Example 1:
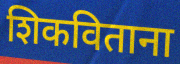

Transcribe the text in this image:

शिकविताना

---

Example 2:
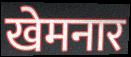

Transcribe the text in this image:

खेमनार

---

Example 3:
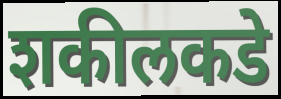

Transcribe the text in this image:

शकीलकडे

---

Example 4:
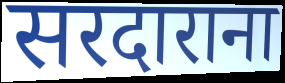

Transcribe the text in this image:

सरदाराना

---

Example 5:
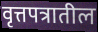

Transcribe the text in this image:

वृत्तपत्रातील